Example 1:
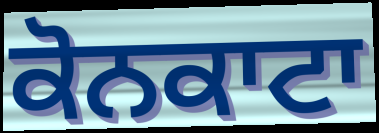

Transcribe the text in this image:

ਕੋਨਕਾਟਾ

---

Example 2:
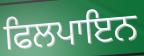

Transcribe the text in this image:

ਫਿਲਪਾਇਨ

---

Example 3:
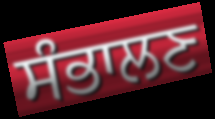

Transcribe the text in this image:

ਸੰਭਾਲਣ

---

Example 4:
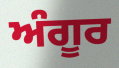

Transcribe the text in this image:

ਅੰਗੂਰ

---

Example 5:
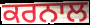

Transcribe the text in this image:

ਕਰਨਾਲ